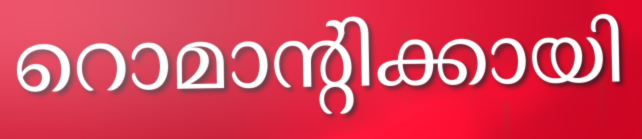
റൊമാന്റിക്കായി